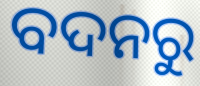
ବଦନରୁ